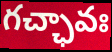
గచ్ఛావః